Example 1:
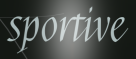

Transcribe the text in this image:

sportive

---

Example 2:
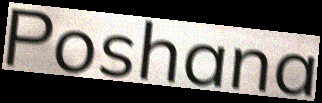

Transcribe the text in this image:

Poshana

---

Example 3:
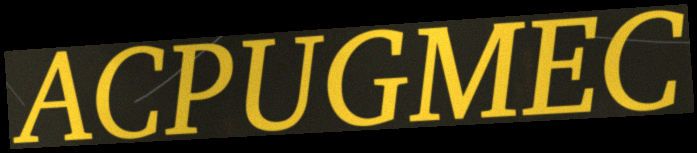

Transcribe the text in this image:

ACPUGMEC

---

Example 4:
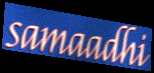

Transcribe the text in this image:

samaadhi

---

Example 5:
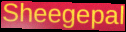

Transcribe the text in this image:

Sheegepal